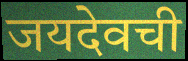
जयदेवची